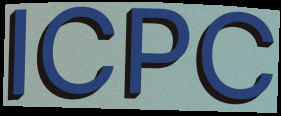
ICPC